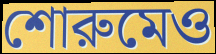
শোরুমেও